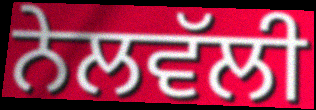
ਨੇਲਵੱਲੀ